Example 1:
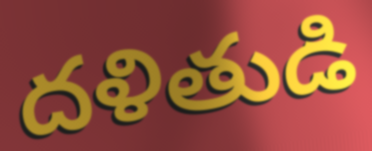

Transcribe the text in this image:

దళితుడి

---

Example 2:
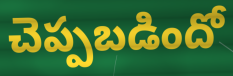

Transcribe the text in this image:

చెప్పబడిందో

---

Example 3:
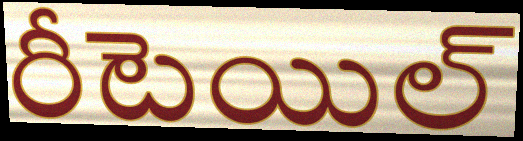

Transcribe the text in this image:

రీటెయిల్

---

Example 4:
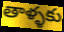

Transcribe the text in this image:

తాళ్ళకు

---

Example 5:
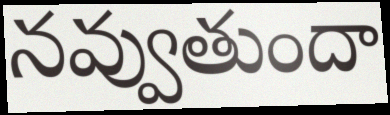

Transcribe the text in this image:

నవ్వుతుందా